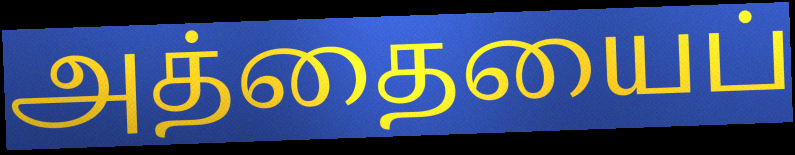
அத்தையைப்